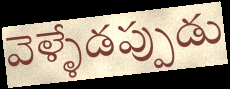
వెళ్ళేడప్పుడు